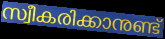
സ്വീകരിക്കാനുണ്ട്